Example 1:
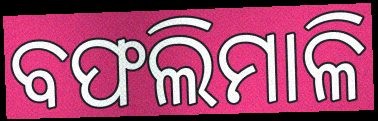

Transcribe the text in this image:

ବଫଲିମାଳି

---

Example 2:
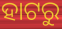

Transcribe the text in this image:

ହାଟରୁ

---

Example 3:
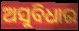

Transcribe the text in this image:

ଅସୁବିଧାର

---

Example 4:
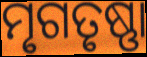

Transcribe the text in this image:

ମୃଗତୃଷ୍ଣା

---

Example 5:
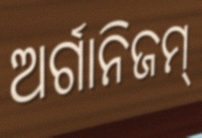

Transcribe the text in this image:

ଅର୍ଗାନିଜମ୍